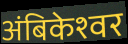
अंबिकेश्वर